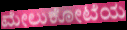
ಮೇಲುಕೋಟೆಯ